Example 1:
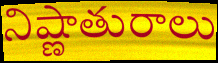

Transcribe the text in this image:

నిష్ణాతురాలు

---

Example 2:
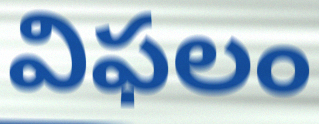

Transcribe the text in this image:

విఫలం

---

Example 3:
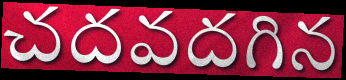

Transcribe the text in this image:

చదవదగిన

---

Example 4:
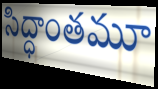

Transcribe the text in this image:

సిద్ధాంతమూ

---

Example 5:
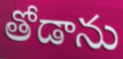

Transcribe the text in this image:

తోడాను